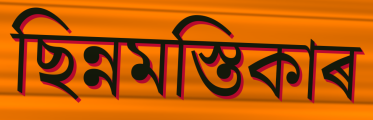
ছিন্নমস্তিকাৰ